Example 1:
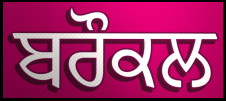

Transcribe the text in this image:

ਬਰੌਕਲ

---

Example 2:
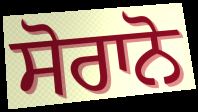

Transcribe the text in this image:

ਸੋਰਾਨੋ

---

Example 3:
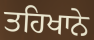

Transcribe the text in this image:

ਤਹਿਖਾਨੇ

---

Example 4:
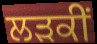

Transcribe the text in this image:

ਲੜਕੀਂ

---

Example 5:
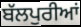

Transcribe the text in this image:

ਬੱਲਪੁਰੀਆਂ